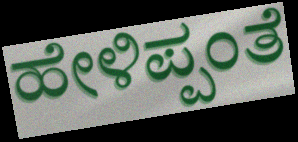
ಹೇಳಿಪ್ಪಂತೆ